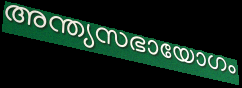
അന്ത്യസഭായോഗം